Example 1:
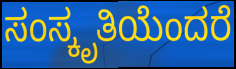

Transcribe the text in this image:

ಸಂಸ್ಕೃತಿಯೆಂದರೆ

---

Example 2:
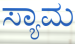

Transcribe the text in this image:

ಸ್ಯಾಮ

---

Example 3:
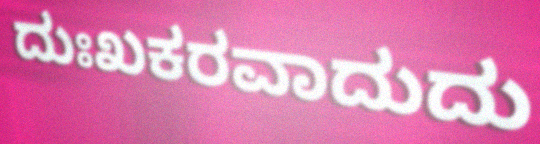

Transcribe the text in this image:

ದುಃಖಕರವಾದುದು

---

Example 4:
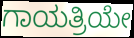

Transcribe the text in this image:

ಗಾಯತ್ರಿಯೇ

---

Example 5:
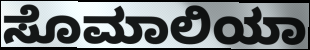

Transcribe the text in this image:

ಸೊಮಾಲಿಯಾ